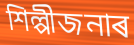
শিল্পীজনাৰ